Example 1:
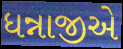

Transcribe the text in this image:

ધન્નાજીએ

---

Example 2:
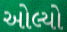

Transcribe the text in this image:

ઓલ્યો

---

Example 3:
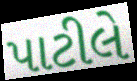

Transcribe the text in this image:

પાટીલે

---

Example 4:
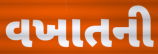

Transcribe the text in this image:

વખાતની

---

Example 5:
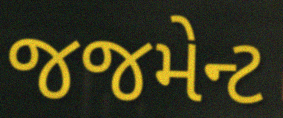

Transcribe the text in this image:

જજમેન્ટ